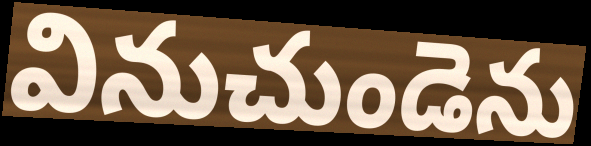
వినుచుండెను